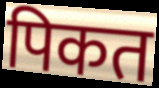
पिकत